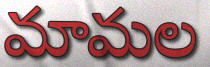
మామల